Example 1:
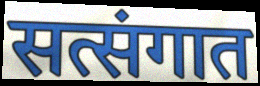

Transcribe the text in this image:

सत्संगात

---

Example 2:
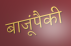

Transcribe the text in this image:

बाजूंपैकी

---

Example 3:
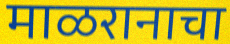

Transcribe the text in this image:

माळरानाचा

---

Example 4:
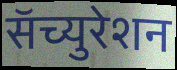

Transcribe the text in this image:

सॅच्युरेशन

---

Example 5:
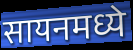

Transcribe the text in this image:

सायनमध्ये